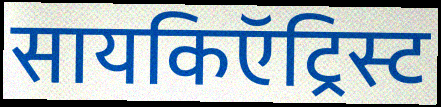
सायकिऍट्रिस्ट